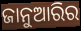
ଜାନୁଆରିର